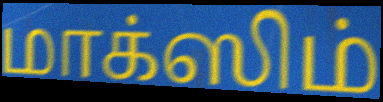
மாக்ஸிம்